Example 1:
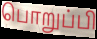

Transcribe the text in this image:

பொறுப்பி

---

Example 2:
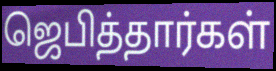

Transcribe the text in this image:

ஜெபித்தார்கள்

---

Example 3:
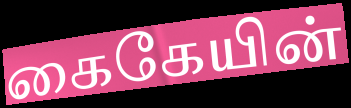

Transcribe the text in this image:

கைகேயின்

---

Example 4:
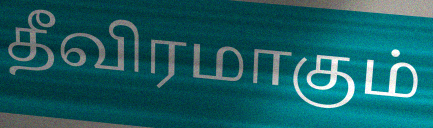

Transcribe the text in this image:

தீவிரமாகும்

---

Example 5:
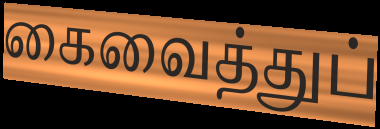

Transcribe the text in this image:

கைவைத்துப்